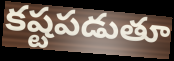
కష్టపడుతూ